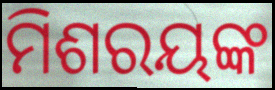
ମିଶରୟଙ୍କ